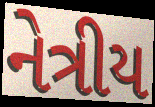
નેત્રીય